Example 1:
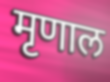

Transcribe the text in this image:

मृणाल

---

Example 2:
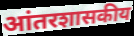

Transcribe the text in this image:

आंतरशासकीय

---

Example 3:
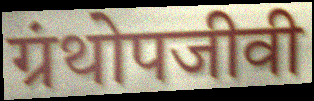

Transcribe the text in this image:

ग्रंथोपजीवी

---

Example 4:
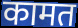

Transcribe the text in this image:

कामत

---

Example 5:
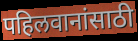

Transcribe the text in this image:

पहिलवानांसाठी